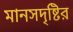
মানসদৃষ্টির